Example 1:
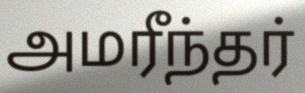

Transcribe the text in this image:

அமரீந்தர்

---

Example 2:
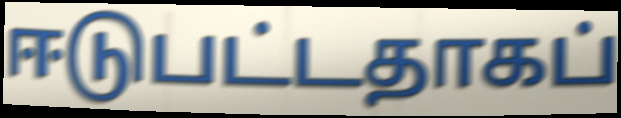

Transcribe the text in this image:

ஈடுபட்டதாகப்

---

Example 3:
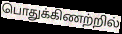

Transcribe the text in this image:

பொதுக்கிணற்றில்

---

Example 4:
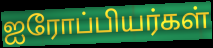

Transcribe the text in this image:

ஐரோப்பியர்கள்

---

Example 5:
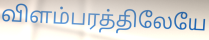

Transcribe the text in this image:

விளம்பரத்திலேயே